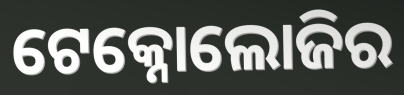
ଟେକ୍ନୋଲୋଜିର